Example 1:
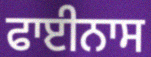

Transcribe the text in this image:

ਫਾਈਨਾਸ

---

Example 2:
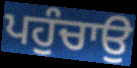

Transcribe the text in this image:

ਪਹੁੰਚਾਉ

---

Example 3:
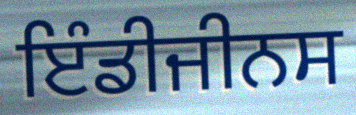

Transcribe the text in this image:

ਇੰਡੀਜੀਨਸ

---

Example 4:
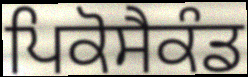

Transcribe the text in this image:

ਪਿਕੋਸੈਕੰਡ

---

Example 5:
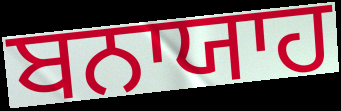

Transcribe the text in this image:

ਬਨਾਯਾਹ